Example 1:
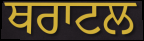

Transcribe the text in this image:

ਥਰਾਟਲ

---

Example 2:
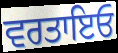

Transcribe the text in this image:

ਵਰਤਾਇਓ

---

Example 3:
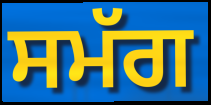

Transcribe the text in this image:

ਸਮੱਗ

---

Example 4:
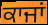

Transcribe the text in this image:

ਕਾਜਾਂ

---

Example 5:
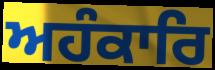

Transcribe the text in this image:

ਅਹੰਕਾਰਿ